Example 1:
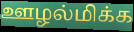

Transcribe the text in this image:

ஊழல்மிக்க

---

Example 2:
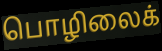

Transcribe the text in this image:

பொழிலைக்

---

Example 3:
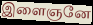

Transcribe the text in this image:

இளைஞனே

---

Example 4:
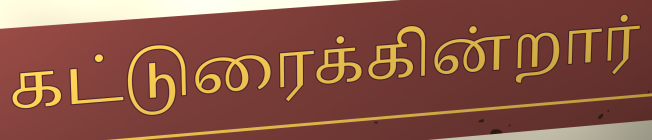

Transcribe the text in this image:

கட்டுரைக்கின்றார்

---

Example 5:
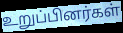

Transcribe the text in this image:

உறுப்பினர்கள்